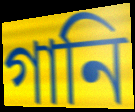
গানি